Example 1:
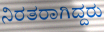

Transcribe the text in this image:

ನಿರತರಾಗಿದ್ದರು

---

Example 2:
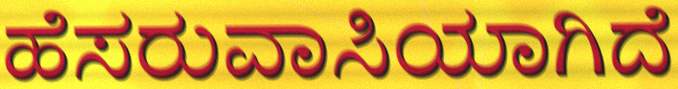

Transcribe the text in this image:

ಹೆಸರುವಾಸಿಯಾಗಿದೆ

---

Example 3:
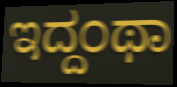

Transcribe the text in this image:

ಇದ್ದಂಥಾ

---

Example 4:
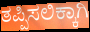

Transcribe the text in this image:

ತಪ್ಪಿಸಲಿಕ್ಕಾಗಿ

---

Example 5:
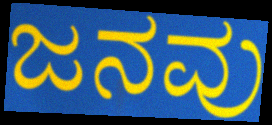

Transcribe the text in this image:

ಜನವು